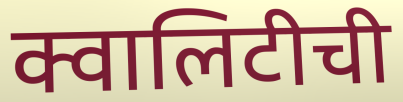
क्वालिटीची